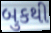
બુકથી